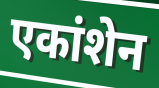
एकांशेन